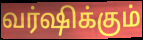
வர்ஷிக்கும்